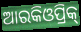
ଆରକିଓପ୍ରିକ୍